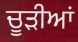
ਚੂੜੀਆਂ